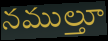
నముల్తూ